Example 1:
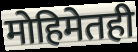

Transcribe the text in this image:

मोहिमेतही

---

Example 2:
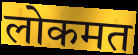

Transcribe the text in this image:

लोकमत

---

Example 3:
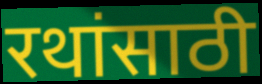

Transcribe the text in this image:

रथांसाठी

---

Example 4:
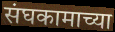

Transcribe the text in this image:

संघकामाच्या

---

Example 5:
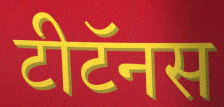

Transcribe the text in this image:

टीटॅनस